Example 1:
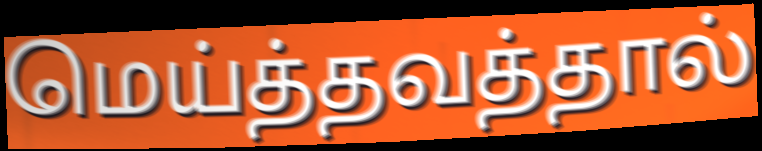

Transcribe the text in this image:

மெய்த்தவத்தால்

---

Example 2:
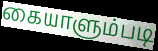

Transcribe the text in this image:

கையாளும்படி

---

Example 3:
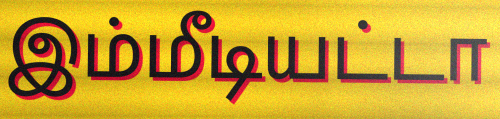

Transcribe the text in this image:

இம்மீடியட்டா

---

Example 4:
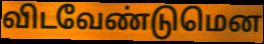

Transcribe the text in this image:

விடவேண்டுமென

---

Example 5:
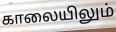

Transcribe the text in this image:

காலையிலும்